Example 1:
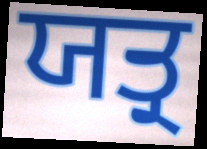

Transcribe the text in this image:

ਯਤ੍ਰ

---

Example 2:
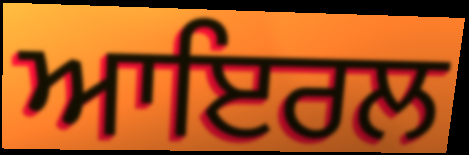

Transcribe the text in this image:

ਆਇਰਲ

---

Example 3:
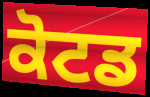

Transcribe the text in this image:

ਕੋਟਡ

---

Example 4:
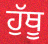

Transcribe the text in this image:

ਹੁੱਥੂ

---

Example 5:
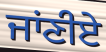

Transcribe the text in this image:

ਜਾਂਣੀਏ